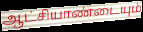
ஆட்சியாண்டையும்